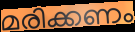
മരിക്കണം